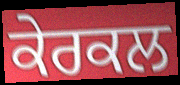
ਕੇਰਕਲ